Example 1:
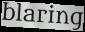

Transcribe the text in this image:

blaring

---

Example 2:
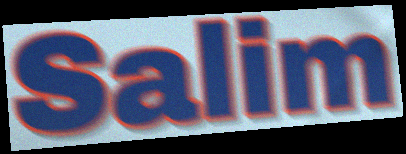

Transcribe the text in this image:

Salim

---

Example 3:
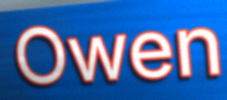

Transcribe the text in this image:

Owen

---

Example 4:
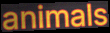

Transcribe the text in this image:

animals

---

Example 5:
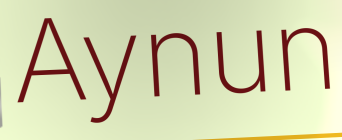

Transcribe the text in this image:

Aynun